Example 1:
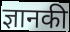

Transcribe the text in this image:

ज्ञानकी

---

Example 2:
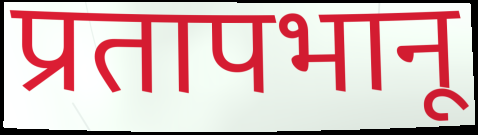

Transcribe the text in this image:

प्रतापभानू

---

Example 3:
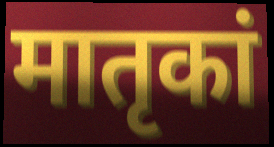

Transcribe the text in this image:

मातृकां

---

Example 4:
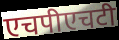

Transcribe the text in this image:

एचपीएचटी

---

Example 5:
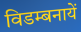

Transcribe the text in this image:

विडम्बनायें